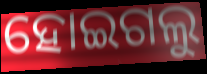
ହୋଇଗଲୁ